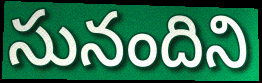
సునందిని